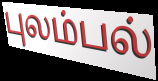
புலம்பல்